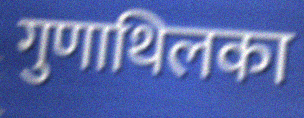
गुणाथिलका